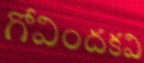
గోవిందకవి